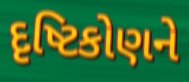
દૃષ્ટિકોણને